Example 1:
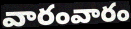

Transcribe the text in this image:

వారంవారం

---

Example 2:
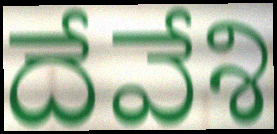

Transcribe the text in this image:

దేవేశి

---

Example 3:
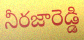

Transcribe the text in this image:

నీరజారెడ్డి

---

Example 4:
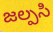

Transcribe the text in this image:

జల్పసి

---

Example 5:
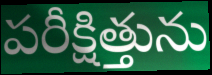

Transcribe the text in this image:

పరీక్షిత్తును